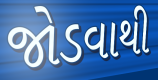
જોડવાથી